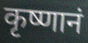
कृष्णानं